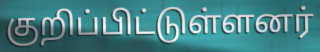
குறிப்பிட்டுள்ளனர்